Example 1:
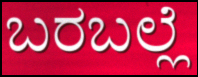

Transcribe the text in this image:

ಬರಬಲ್ಲೆ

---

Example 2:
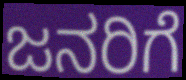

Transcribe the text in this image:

ಜನರಿಗೆ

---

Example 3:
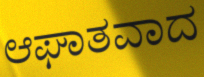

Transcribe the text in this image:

ಆಘಾತವಾದ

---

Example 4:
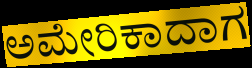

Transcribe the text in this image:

ಅಮೇರಿಕಾದಾಗ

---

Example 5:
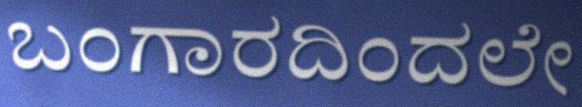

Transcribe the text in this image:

ಬಂಗಾರದಿಂದಲೇ